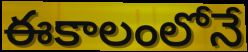
ఈకాలంలోనే